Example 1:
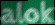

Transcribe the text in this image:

alok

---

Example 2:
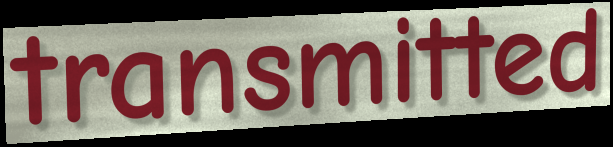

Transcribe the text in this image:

transmitted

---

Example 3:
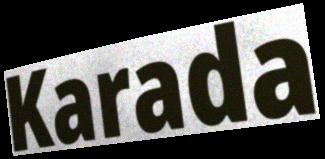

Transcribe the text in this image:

Karada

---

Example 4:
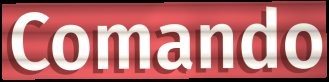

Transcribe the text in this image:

Comando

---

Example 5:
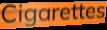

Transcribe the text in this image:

Cigarettes